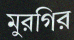
মুরগির